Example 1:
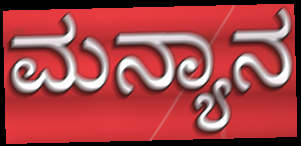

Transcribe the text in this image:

ಮನ್ಯಾನ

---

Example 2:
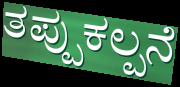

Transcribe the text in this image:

ತಪ್ಪುಕಲ್ಪನೆ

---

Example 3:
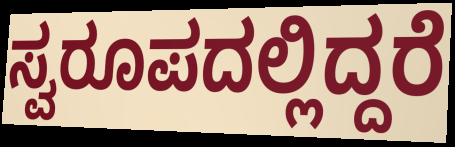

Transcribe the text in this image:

ಸ್ವರೂಪದಲ್ಲಿದ್ದರೆ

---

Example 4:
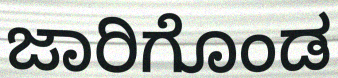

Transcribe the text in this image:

ಜಾರಿಗೊಂಡ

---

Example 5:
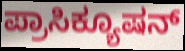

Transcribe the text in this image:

ಪ್ರಾಸಿಕ್ಯೂಷನ್